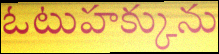
ఓటుహక్కును